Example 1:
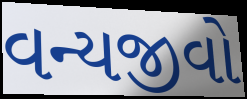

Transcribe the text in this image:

વન્યજીવો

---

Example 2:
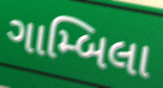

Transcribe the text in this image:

ગામ્બિલા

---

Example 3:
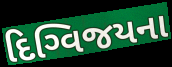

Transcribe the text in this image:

દિગ્વિજયના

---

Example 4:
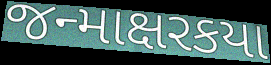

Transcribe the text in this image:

જન્માક્ષરકયા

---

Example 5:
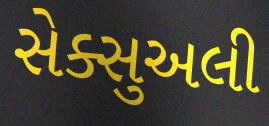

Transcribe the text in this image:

સેક્સુઅલી